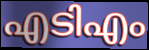
എടിഎം